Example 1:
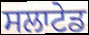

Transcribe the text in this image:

ਸਲਾਟੇਡ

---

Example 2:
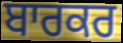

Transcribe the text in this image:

ਬਾਰਕਰ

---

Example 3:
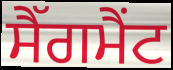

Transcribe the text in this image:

ਸੈੱਗਮੈਂਟ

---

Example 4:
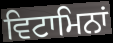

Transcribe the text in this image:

ਵਿਟਾਮਿਨਾਂ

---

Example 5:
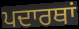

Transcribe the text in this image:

ਪਦਾਰਥਾਂ